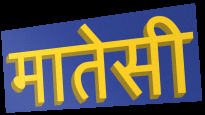
मातेसी